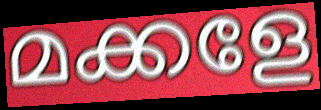
മക്കളേ